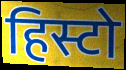
हिस्टो